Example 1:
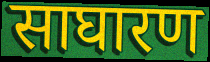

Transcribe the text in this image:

साघारण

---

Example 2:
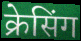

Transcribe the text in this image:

क्रेसिंग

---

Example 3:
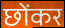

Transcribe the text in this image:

छोंकर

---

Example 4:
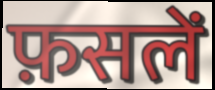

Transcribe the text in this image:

फ़सलें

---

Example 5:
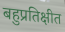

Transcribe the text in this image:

बहुप्रतिक्षीत